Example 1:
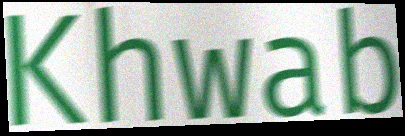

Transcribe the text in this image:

Khwab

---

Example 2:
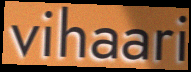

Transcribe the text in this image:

vihaari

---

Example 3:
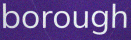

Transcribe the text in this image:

borough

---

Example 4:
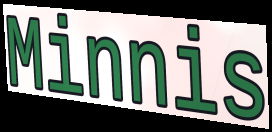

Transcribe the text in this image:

Minnis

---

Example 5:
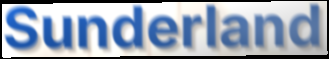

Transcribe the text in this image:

Sunderland